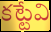
కట్టేవి